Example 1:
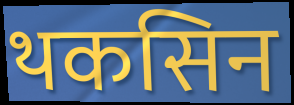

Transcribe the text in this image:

थकसिन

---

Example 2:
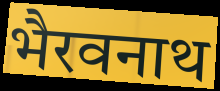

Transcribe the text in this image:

भैरवनाथ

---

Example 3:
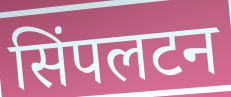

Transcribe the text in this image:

सिंपलटन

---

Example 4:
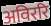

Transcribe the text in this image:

अविररि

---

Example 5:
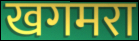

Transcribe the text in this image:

खगमरा